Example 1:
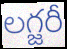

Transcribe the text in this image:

లగ్జరీ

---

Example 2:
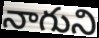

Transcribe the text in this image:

నాగుని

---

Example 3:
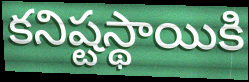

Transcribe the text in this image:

కనిష్టస్థాయికి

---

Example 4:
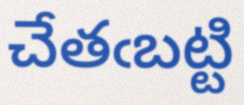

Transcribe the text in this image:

చేతఁబట్టి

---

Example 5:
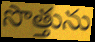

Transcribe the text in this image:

సొత్తును